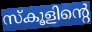
സ്കൂളിന്റെ